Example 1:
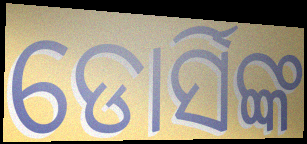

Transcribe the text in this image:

ଡୋର୍ସିଙ୍କ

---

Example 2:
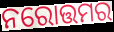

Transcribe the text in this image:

ନରୋତ୍ତମର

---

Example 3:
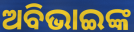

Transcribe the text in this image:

ଅବିଭାଇଙ୍କ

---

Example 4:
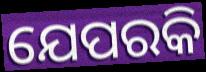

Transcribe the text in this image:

ଯେପରକି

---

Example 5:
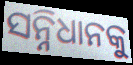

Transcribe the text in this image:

ସନ୍ନିଧାନକୁ